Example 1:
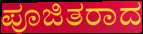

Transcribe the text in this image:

ಪೂಜಿತರಾದ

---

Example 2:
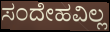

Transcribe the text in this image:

ಸಂದೇಹವಿಲ್ಲ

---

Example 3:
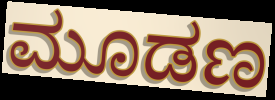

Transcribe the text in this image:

ಮೂಡಣ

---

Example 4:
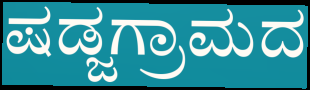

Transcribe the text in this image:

ಷಡ್ಜಗ್ರಾಮದ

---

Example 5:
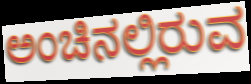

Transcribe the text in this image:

ಅಂಚಿನಲ್ಲಿರುವ